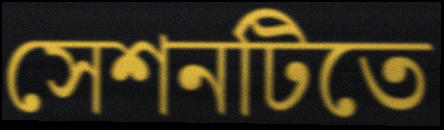
সেশনটিতে